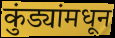
कुंड्यांमधून